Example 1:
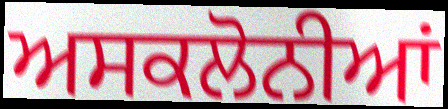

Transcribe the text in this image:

ਅਸਕਲੋਨੀਆਂ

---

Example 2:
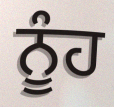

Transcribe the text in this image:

ਨੂੰਹ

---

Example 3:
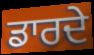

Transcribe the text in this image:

ਡਾਰਦੇ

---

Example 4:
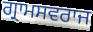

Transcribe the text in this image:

ਗ੍ਰਾਮਸਵਰਾਜ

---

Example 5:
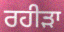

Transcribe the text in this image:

ਰਹੀੜਾ